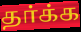
தர்க்க